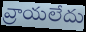
వ్రాయలేదు